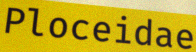
Ploceidae